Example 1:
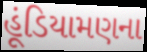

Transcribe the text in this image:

હૂંડિયામણના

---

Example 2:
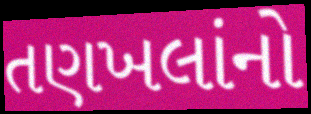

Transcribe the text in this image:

તણખલાંનો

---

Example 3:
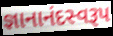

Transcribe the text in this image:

જ્ઞાનાનંદસ્વરૂપ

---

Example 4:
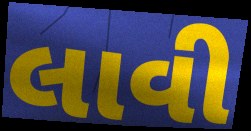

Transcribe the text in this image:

લાવી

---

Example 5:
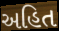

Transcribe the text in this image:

અહિત